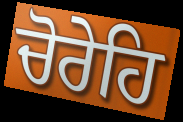
ਚੋਰੇਹਿ